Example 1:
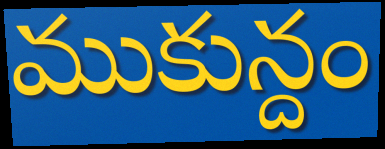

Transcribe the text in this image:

ముకున్దం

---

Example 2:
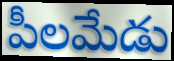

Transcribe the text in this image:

పీలమేడు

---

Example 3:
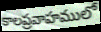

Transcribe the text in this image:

కాలప్రవాహములో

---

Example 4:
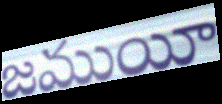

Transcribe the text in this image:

జముయీ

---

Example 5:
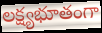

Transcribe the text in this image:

లక్ష్యభూతంగా